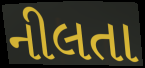
નીલતા